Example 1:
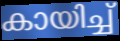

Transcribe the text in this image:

കായിച്ച്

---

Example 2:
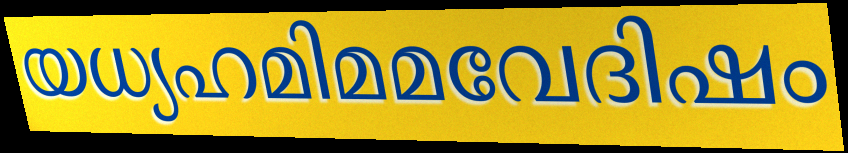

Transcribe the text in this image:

യധ്യഹമിമമവേദിഷം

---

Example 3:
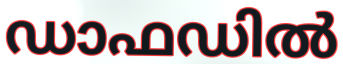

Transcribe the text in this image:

ഡാഫഡിൽ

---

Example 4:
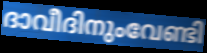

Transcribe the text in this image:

ദാവീദിനുംവേണ്ടി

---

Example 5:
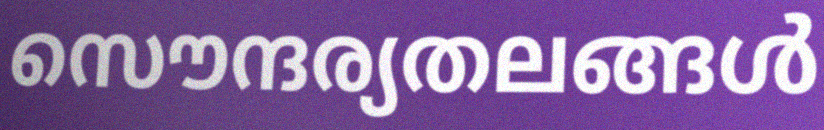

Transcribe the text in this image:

സൌന്ദര്യതലങ്ങൾ